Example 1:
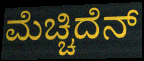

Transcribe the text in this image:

ಮೆಚ್ಚಿದೆನ್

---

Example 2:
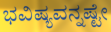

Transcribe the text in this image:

ಭವಿಷ್ಯವನ್ನಷ್ಟೇ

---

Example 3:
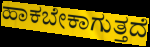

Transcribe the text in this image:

ಹಾಕಬೇಕಾಗುತ್ತದೆ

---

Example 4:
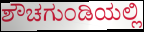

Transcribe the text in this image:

ಶೌಚಗುಂಡಿಯಲ್ಲಿ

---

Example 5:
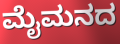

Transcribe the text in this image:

ಮೈಮನದ